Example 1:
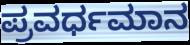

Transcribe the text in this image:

ಪ್ರವರ್ಧಮಾನ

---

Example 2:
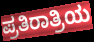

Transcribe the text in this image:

ಪ್ರತಿರಾತ್ರಿಯ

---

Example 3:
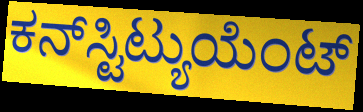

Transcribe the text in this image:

ಕನ್‌ಸ್ಟಿಟ್ಯುಯೆಂಟ್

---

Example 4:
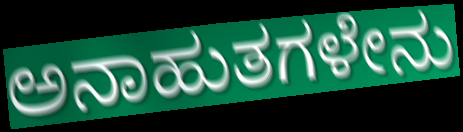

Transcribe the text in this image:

ಅನಾಹುತಗಳೇನು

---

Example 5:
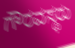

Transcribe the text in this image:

ಗೌರವಸ್ಥರು